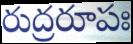
రుద్రరూపః